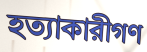
হত্যাকারীগণ